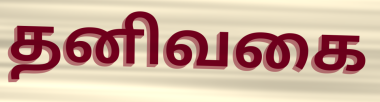
தனிவகை